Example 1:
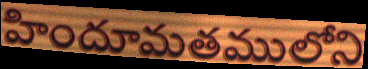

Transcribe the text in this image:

హిందూమతములోని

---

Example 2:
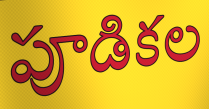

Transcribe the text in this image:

పూడికల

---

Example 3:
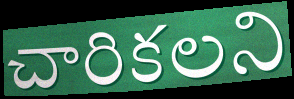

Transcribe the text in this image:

చారికలని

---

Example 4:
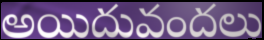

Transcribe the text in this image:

అయిదువందలు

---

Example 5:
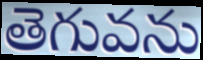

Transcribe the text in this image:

తెగువను